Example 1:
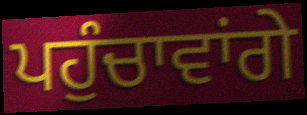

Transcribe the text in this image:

ਪਹੁੰਚਾਵਾਂਗੇ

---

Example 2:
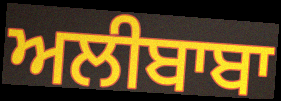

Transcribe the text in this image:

ਅਲੀਬਾਬਾ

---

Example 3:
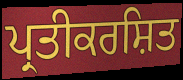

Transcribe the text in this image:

ਪ੍ਰਤੀਕਰਸ਼ਿਤ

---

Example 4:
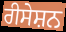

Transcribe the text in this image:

ਰੀਸੇਸ਼ਨ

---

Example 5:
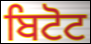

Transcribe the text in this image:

ਬਿਟੋਟ